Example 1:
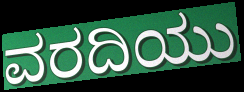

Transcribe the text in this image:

ವರದಿಯು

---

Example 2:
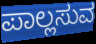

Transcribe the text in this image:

ಪಾಲ್ಲಸುವ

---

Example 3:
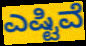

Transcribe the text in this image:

ಎಷ್ಟಿವೆ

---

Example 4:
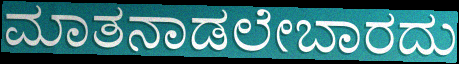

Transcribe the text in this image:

ಮಾತನಾಡಲೇಬಾರದು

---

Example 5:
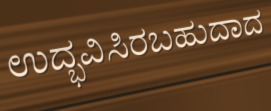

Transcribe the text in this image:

ಉದ್ಭವಿಸಿರಬಹುದಾದ